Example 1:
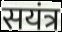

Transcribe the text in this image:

सयंत्र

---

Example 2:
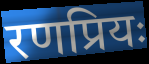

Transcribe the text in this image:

रणप्रियः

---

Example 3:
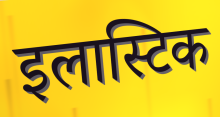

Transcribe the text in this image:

इलास्टिक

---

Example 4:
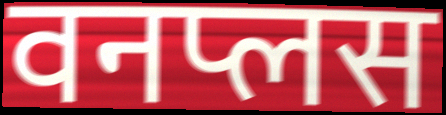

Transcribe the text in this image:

वनप्लस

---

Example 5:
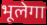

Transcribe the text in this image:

भूलेगा